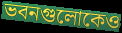
ভবনগুলোকেও